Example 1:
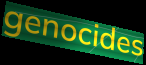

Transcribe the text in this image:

genocides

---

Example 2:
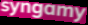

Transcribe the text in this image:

syngamy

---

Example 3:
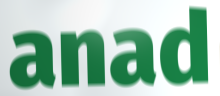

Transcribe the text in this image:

anad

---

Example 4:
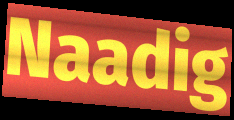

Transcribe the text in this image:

Naadig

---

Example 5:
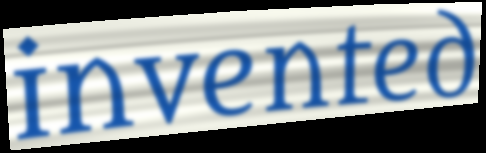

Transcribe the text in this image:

invented